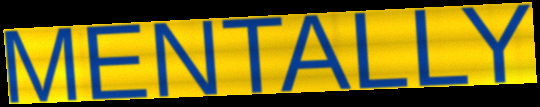
MENTALLY